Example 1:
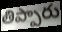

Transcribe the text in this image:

తిప్పారు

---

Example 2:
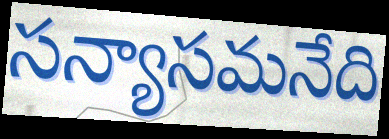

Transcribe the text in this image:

సన్యాసమనేది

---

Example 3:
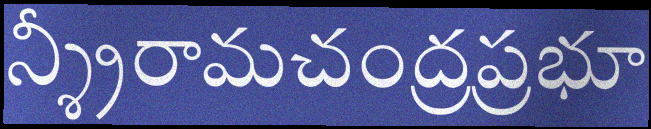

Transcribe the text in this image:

న్శ్రీరామచంద్రప్రభూ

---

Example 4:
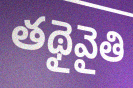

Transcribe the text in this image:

తథైవైతి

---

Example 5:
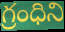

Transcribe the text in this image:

గ్రంధిని